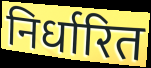
निर्धारित